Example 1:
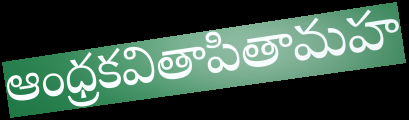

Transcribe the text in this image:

ఆంధ్రకవితాపితామహ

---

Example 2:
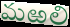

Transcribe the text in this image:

మఱలి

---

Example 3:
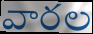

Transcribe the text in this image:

వారల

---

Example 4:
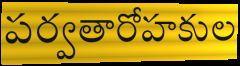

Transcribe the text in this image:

పర్వతారోహకుల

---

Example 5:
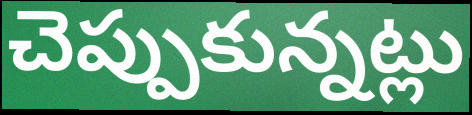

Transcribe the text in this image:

చెప్పుకున్నట్లు